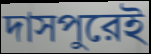
দাসপুরেই